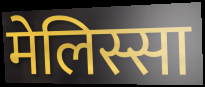
मेलिस्सा